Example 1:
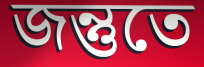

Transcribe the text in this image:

জন্তুতে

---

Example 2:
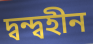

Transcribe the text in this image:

দ্বন্দ্বহীন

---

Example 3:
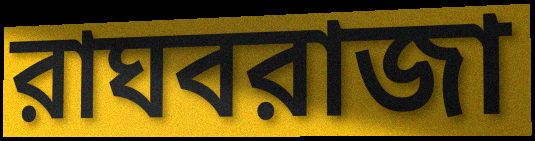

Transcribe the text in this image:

রাঘবরাজা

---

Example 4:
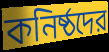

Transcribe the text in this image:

কনিষ্ঠদের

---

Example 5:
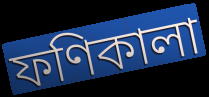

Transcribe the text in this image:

ফণিকালা